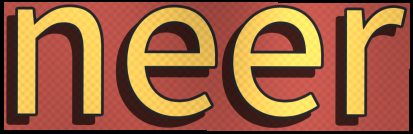
neer